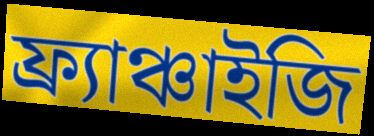
ফ্র্যাঞ্চাইজি